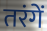
तरंगें